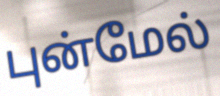
புன்மேல்